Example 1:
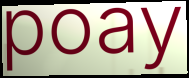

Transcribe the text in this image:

poay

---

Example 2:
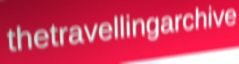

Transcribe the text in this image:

thetravellingarchive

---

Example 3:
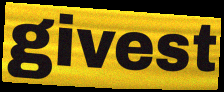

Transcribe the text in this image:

givest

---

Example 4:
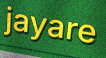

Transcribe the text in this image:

jayare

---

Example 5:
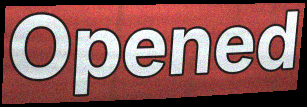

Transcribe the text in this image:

Opened